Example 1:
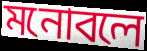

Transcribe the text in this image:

মনোবলে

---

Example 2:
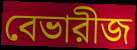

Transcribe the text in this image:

বেভারীজ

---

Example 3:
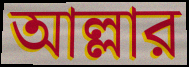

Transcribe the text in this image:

আল্লার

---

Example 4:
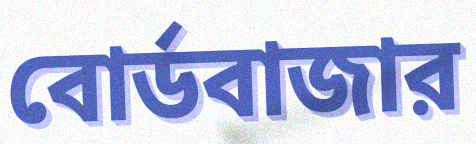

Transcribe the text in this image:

বোর্ডবাজার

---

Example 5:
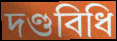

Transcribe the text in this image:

দণ্ডবিধি